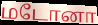
மடோனா